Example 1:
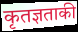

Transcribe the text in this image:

कृतज्ञताकी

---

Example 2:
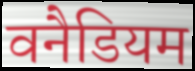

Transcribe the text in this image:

वनैडियम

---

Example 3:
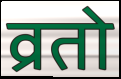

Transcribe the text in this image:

व्रतो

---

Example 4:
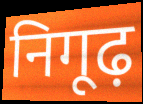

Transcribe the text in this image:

निगूढ़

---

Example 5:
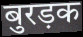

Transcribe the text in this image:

बुरड़क